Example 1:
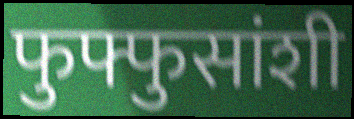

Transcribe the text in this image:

फुफ्फुसांशी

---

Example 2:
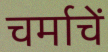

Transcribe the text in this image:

चर्माचें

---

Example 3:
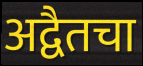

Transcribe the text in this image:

अद्वैतचा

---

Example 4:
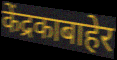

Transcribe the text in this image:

केंद्रकाबाहेर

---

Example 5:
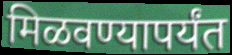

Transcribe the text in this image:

मिळवण्यापर्यंत